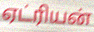
ஏட்ரியன்